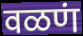
वळणं